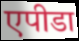
एपीडा